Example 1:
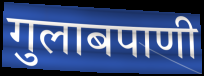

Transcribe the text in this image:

गुलाबपाणी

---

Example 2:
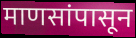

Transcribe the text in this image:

माणसांपासून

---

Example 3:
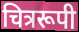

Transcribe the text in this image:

चित्ररूपी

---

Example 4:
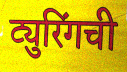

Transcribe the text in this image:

ट्युरिंगची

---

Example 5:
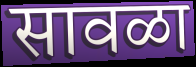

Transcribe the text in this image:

सावळा